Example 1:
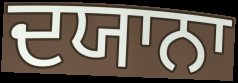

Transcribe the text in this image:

ਦਯਾਨਾ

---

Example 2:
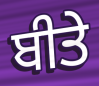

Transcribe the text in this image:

ਬੀਤੇ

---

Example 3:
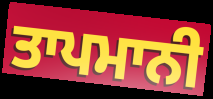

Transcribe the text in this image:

ਤਾਪਮਾਨੀ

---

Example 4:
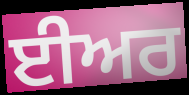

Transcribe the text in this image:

ਈਅਰ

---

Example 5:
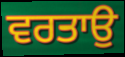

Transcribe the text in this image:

ਵਰਤਾਉ